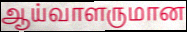
ஆய்வாளருமான